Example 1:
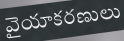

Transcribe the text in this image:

వైయాకరణులు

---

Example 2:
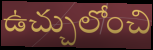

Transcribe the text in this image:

ఉచ్చులోంచి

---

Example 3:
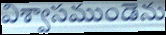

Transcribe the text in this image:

విశ్వాసముండెను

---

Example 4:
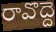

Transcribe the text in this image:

రావొద్దె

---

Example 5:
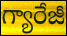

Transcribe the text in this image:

గ్యారేజీ